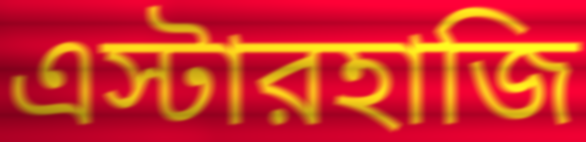
এস্টারহাজি